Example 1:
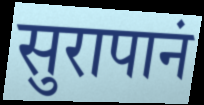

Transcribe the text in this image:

सुरापानं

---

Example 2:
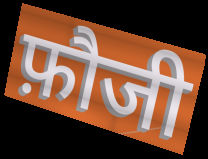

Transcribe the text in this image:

फ़ौजी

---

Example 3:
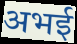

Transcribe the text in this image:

अभई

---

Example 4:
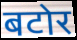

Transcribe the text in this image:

बटोर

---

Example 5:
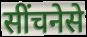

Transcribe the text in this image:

सींचनेसे